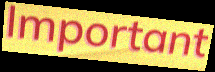
Important